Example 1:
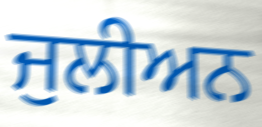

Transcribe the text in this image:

ਜੁਲੀਅਨ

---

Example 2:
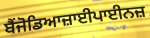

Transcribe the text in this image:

ਬੈਂਜੋਡਿਆਜ਼ਾਈਪਾਈਨਜ਼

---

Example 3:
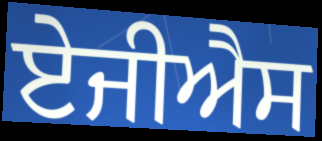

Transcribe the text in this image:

ਏਜੀਐਸ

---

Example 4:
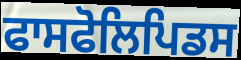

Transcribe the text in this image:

ਫਾਸਫੋਲਿਪਿਡਸ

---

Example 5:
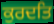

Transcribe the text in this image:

ਕੁਰਦਤਿ